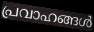
പ്രവാഹങ്ങൾ